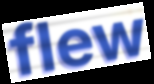
flew